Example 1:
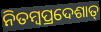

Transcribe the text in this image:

ନିତମ୍ବପ୍ରଦେଶାତ୍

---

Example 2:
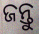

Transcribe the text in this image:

ଜନ୍ତୁ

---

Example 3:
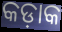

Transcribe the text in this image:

କଡ଼ାକ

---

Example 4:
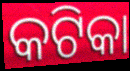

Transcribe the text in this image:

କଟିକା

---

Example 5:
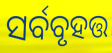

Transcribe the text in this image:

ସର୍ବବୃହତ୍ତ